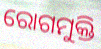
ରୋଗମୁକ୍ତି